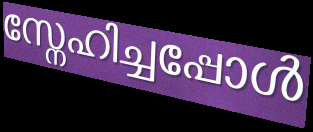
സ്നേഹിച്ചപ്പോൾ